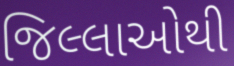
જિલ્લાઓથી